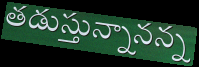
తడుస్తున్నానన్న